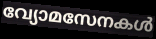
വ്യോമസേനകൾ